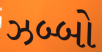
ઝબ્બો